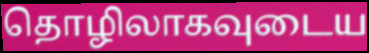
தொழிலாகவுடைய